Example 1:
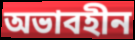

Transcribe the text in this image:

অভাবহীন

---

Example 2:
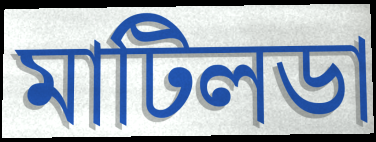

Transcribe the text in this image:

মাটিলডা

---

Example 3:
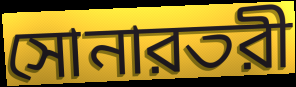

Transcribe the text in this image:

সোনারতরী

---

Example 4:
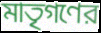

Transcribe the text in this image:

মাতৃগণের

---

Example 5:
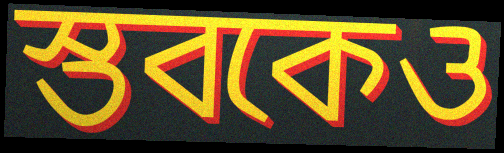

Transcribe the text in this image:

স্তবকেও